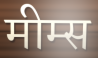
मीम्स